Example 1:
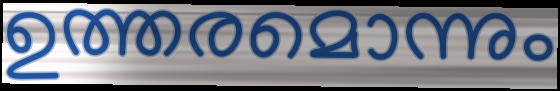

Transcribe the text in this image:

ഉത്തരമൊന്നും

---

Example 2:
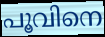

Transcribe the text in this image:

പൂവിനെ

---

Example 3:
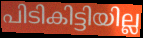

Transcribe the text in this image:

പിടികിട്ടിയില്ല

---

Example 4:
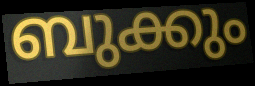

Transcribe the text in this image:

ബുക്കും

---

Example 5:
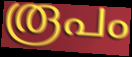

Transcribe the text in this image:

രൂപം